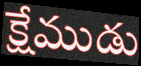
క్షేముడు